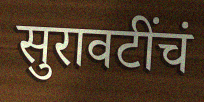
सुरावटींचं